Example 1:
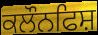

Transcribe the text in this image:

ਕਲੌਨਫਿਸ਼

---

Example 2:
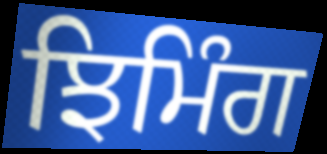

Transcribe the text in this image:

ਝਿਮਿੰਗ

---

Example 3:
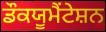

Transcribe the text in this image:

ਡੌਕਯੂਮੈਂਟੇਸ਼ਨ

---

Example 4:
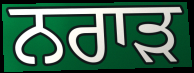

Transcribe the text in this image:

ਨਰਾੜ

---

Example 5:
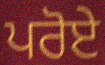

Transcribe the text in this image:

ਪਰੋਏ